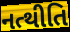
નત્થીતિ